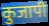
कुजापी